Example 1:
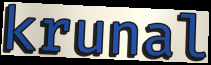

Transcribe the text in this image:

krunal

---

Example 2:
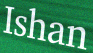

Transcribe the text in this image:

Ishan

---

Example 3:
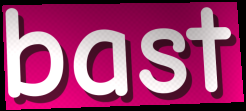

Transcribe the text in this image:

bast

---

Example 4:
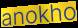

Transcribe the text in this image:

anokho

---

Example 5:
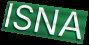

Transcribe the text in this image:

ISNA